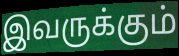
இவருக்கும்